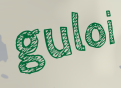
guloi